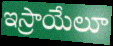
ఇస్రాయేలూ